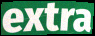
extra